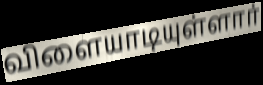
விளையாடியுள்ளார்